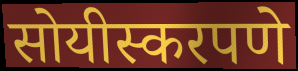
सोयीस्करपणे